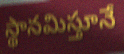
స్థానమిస్తూనే